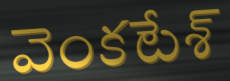
వెంకటేశ్